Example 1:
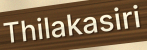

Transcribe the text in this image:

Thilakasiri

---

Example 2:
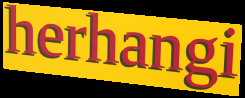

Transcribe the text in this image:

herhangi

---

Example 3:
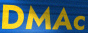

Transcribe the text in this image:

DMAc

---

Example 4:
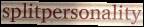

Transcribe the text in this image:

splitpersonality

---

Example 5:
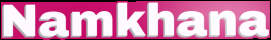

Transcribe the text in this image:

Namkhana